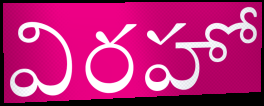
విరహో